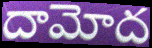
దామోద